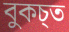
বুকচ্ত